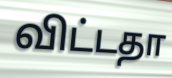
விட்டதா